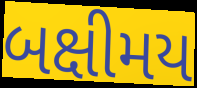
બક્ષીમય